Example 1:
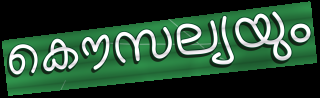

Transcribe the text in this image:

കൌസല്യയും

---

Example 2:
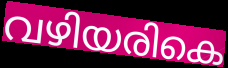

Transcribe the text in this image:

വഴിയരികെ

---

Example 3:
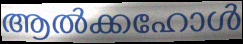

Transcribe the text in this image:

ആൽക്കഹോൾ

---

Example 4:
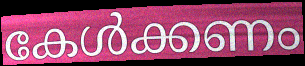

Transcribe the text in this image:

കേൾക്കണം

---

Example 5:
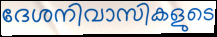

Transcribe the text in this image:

ദേശനിവാസികളുടെ